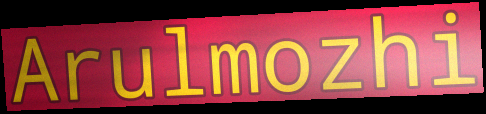
Arulmozhi